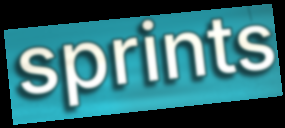
sprints